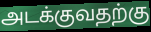
அடக்குவதற்கு